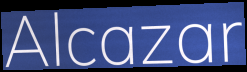
Alcazar